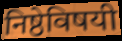
निष्ठेविषयी